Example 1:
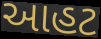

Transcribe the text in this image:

આહટ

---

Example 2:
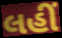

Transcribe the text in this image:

લહીં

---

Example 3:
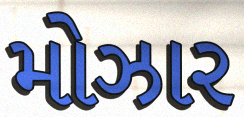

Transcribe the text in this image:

મોઝાર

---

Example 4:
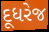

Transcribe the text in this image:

દૂધરેજ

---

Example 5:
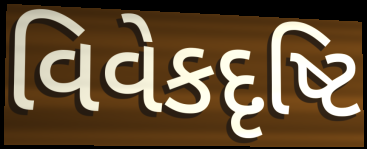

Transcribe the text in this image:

વિવેકદૃષ્ટિ